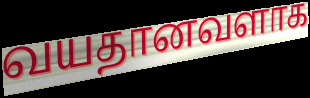
வயதானவளாக